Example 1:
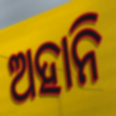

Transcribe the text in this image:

ଅହାନି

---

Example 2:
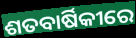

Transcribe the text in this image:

ଶତବାର୍ଷିକୀରେ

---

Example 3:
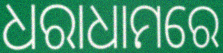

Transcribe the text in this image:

ଧରାଧାମରେ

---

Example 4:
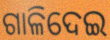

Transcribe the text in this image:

ଗାଳିଦେଇ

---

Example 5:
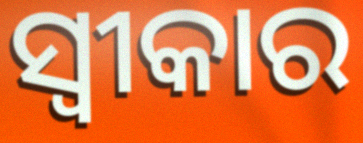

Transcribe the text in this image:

ସ୍ଵୀକାର